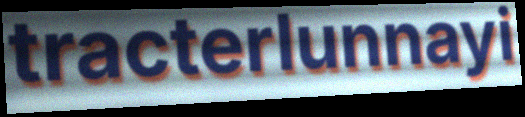
tracterlunnayi